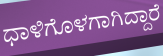
ಧಾಳಿಗೊಳಗಾಗಿದ್ದಾರೆ